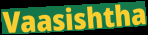
Vaasishtha